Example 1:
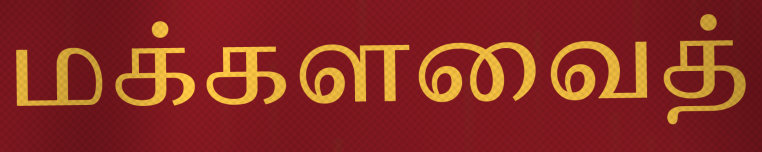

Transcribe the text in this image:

மக்களவைத்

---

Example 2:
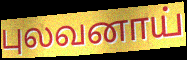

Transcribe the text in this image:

புலவனாய்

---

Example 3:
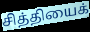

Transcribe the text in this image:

சித்தியைக்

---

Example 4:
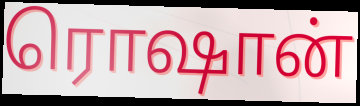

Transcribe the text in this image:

ரொஷான்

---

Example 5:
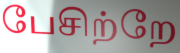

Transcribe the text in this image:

பேசிற்றே